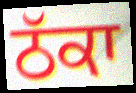
ਠੱਕਾ